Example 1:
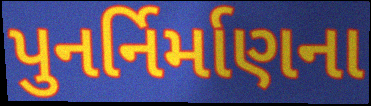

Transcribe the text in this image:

પુનર્નિર્માણના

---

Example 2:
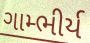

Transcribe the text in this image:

ગામ્ભીર્ય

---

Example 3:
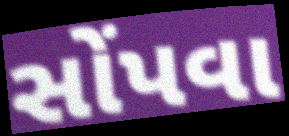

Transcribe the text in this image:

સોંપવા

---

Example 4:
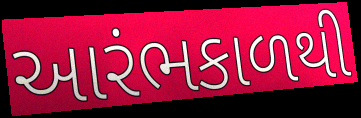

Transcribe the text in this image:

આરંભકાળથી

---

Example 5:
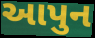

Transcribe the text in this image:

આપુન